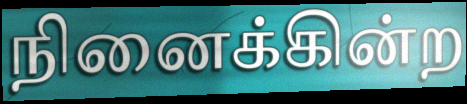
நினைக்கின்ற